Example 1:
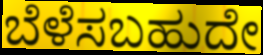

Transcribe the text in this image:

ಬೆಳೆಸಬಹುದೇ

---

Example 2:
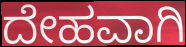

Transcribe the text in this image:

ದೇಹವಾಗಿ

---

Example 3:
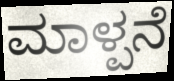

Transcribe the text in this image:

ಮಾಳ್ಪನೆ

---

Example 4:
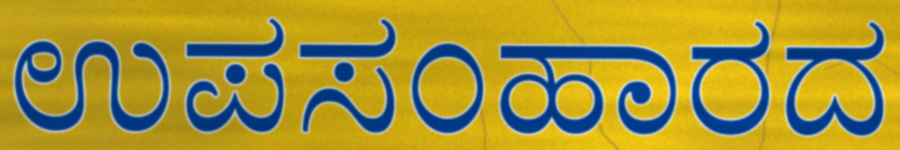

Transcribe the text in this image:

ಉಪಸಂಹಾರದ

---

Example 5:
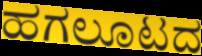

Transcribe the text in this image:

ಹಗಲೂಟದ